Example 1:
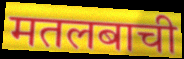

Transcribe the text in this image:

मतलबाची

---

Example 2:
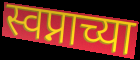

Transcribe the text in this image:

स्वप्नाच्या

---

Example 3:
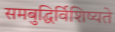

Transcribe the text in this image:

समबुद्धिर्विशिष्यते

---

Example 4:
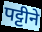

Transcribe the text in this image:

पट्टीने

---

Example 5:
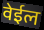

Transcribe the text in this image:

वेईल